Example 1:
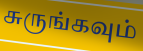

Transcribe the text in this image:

சுருங்கவும்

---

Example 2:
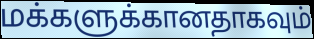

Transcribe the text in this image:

மக்களுக்கானதாகவும்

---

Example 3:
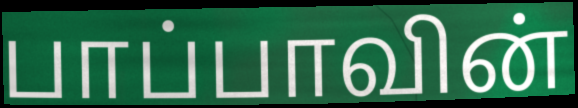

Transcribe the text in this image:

பாப்பாவின்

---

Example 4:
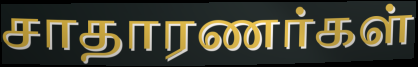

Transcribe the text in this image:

சாதாரணர்கள்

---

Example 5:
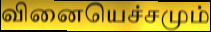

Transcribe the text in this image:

வினையெச்சமும்